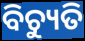
ବିଚ୍ୟୁତି